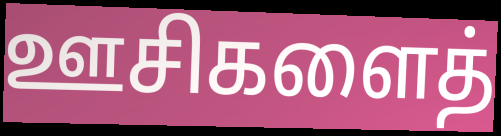
ஊசிகளைத்